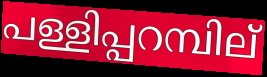
പള്ളിപ്പറമ്പില്